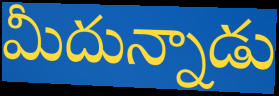
మీదున్నాడు